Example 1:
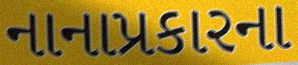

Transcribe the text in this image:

નાનાપ્રકારના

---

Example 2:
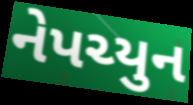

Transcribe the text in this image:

નેપચ્યુન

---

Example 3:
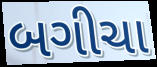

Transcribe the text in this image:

બગીચા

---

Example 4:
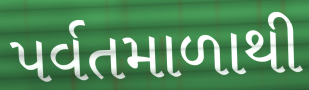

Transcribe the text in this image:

પર્વતમાળાથી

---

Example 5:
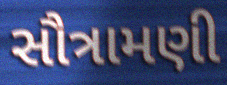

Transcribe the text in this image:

સૌત્રામણી